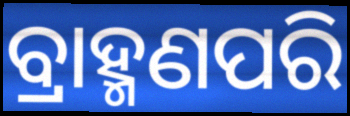
ବ୍ରାହ୍ମଣପରି